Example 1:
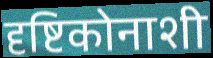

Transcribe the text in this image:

दृष्टिकोनाशी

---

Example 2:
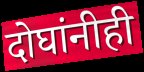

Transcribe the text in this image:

दोघांनीही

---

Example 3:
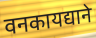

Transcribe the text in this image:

वनकायद्याने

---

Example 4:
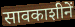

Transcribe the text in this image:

सावकाशीनें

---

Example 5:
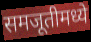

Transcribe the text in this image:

समजूतीमध्ये